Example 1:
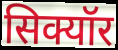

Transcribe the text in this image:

सिक्यॉर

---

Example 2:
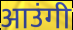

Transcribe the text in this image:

आउंगी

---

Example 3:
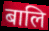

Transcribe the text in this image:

बालि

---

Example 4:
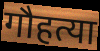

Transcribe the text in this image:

गौहत्या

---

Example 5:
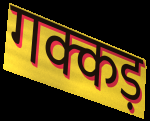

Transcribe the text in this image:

गक्कड़